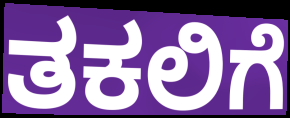
ತಕಲಿಗೆ